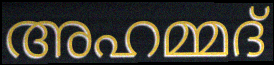
അഹമ്മദ്